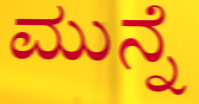
ಮುನ್ನೆ